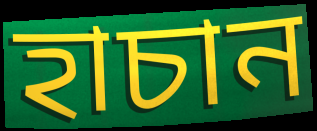
হাচান